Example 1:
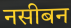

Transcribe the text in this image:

नसीबन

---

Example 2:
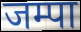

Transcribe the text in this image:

जम्पा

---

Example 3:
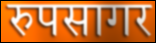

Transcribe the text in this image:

रुपसागर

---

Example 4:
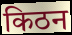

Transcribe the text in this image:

किठन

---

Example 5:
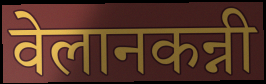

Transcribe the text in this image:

वेलानकन्नी